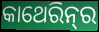
କାଥେରିନ୍‌ର